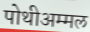
पोथीअम्मल